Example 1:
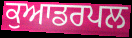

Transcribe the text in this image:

ਕੁਆਡਰਪਲ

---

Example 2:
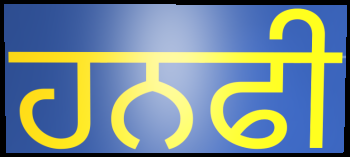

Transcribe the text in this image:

ਹਨਫੀ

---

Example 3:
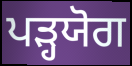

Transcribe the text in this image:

ਪੜ੍ਹਯੋਗ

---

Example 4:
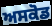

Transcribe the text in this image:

ਅਸਕੋਡ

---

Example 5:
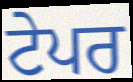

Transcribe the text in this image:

ਟੇਪਰ